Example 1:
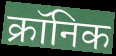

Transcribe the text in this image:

क्रॉनिक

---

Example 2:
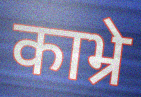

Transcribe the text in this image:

काभ्रे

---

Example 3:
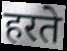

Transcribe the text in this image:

हरते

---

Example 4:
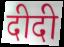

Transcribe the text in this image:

दीदी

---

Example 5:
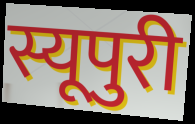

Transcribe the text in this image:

स्यूपुरी